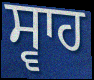
ਸ੍ਵਾਹ